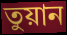
তুয়ান